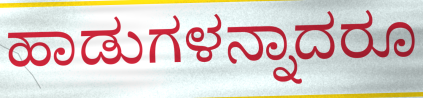
ಹಾಡುಗಳನ್ನಾದರೂ